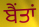
ਬੈਂਤਾਂ